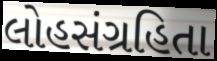
લોહસંગ્રહિતા